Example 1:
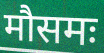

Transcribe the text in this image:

मौसमः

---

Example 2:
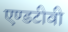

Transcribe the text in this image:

एण्डटीवी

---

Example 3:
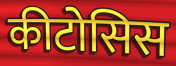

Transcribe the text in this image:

कीटोसिस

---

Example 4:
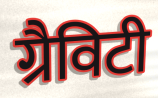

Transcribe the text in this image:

ग्रैविटी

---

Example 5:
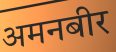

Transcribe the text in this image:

अमनबीर